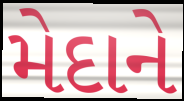
મેદાને